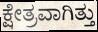
ಕ್ಷೇತ್ರವಾಗಿತ್ತು